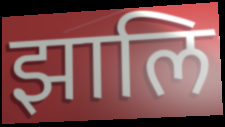
झालि